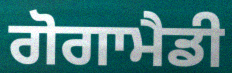
ਗੋਗਾਮੈਡੀ